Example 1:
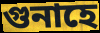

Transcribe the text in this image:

গুনাহে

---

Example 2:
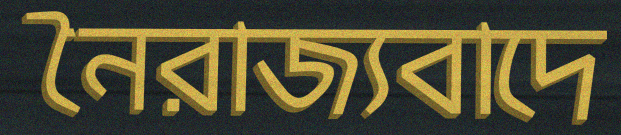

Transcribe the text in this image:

নৈরাজ্যবাদে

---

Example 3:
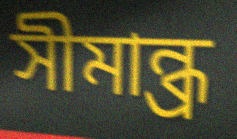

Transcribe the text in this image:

সীমান্ধ্র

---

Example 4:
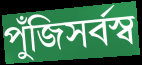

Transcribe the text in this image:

পুঁজিসর্বস্ব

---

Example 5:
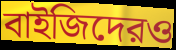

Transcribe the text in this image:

বাইজিদেরও